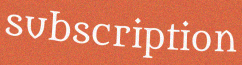
subscription